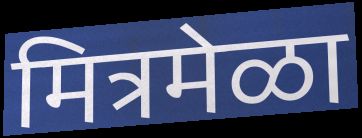
मित्रमेळा